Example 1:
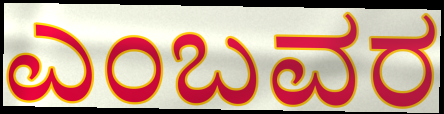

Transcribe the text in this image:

ಎಂಬವರ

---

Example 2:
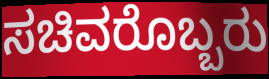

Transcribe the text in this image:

ಸಚಿವರೊಬ್ಬರು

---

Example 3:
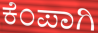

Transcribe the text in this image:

ಕೆಂಪಾಗಿ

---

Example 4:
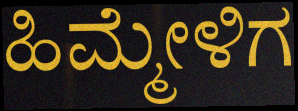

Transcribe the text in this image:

ಹಿಮ್ಮೇಳಿಗ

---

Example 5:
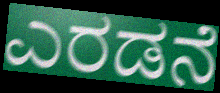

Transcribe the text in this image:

ಎರಡನೆ